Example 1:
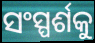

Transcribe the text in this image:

ସଂସ୍ପର୍ଶକୁ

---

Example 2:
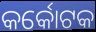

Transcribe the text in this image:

କର୍କୋଟକ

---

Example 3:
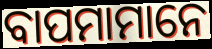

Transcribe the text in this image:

ବାପମାମାନେ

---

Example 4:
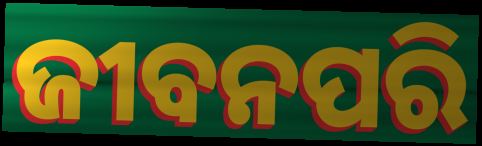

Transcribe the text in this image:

ଜୀବନପରି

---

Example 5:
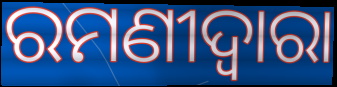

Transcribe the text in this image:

ରମଣୀଦ୍ୱାରା